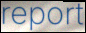
report